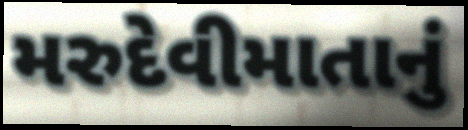
મરુદેવીમાતાનું